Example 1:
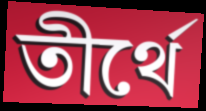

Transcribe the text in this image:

তীর্থে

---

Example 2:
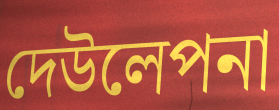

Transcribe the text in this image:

দেউলেপনা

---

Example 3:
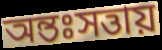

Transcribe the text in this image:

অন্তঃসত্তায়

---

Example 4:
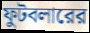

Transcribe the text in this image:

ফুটবলারের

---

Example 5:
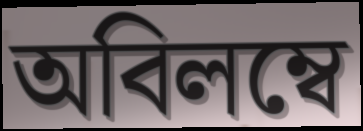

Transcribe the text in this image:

অবিলম্বে